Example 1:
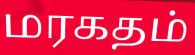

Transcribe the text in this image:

மரகதம்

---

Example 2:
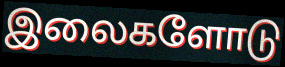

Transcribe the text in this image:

இலைகளோடு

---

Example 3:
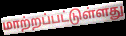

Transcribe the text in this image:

மாற்றப்பட்டுள்ளது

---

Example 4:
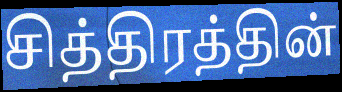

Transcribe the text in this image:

சித்திரத்தின்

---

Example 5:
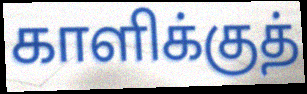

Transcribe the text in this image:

காளிக்குத்